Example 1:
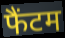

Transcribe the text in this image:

फैंटम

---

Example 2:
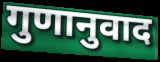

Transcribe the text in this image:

गुणानुवाद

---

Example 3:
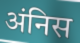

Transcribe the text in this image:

अंनिस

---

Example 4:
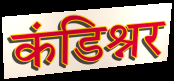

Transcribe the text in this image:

कंडिश्नर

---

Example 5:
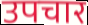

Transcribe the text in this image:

उपचार